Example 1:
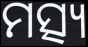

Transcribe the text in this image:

ମତ୍ସ୍ୟ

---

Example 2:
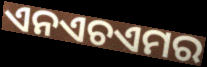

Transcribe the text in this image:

ଏନଏଚଏମର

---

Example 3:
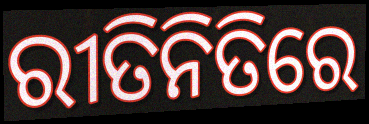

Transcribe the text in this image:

ରୀତିନିତିରେ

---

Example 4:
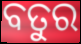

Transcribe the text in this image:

ବତୁର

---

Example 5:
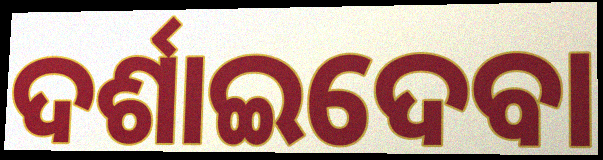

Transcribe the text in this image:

ଦର୍ଶାଇଦେବା